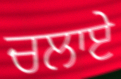
ਚਲਾਏ